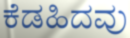
ಕೆಡಹಿದವು